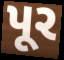
પૂર